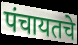
पंचायतचे